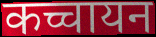
कच्चायन